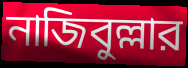
নাজিবুল্লার